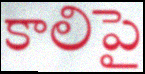
కాలిపై